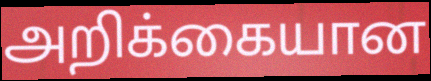
அறிக்கையான